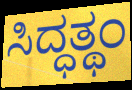
ಸಿದ್ಧತ್ಥಂ